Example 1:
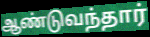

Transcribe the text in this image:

ஆண்டுவந்தார்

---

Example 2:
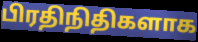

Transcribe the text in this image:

பிரதிநிதிகளாக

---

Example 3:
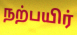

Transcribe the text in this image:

நற்பயிர்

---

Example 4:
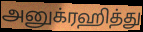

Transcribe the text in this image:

அனுக்ரஹித்து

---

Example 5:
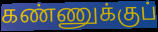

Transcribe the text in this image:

கண்ணுக்குப்